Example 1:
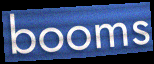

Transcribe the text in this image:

booms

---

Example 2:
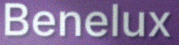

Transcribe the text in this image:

Benelux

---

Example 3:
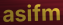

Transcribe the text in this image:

asifm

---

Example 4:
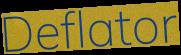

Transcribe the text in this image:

Deflator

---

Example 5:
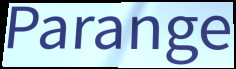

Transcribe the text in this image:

Parange